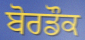
ਬੋਰਡੌਕ